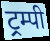
ट्रम्पी